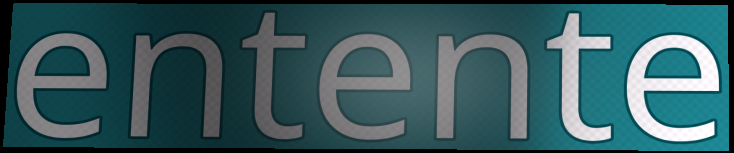
entente